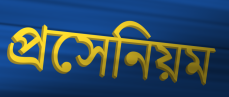
প্রসেনিয়ম